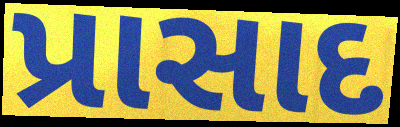
પ્રાસાદ